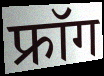
फ्रॉग